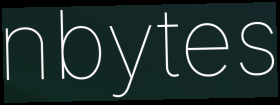
nbytes